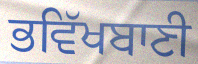
ਭਵਿੱਖਬਾਣੀ